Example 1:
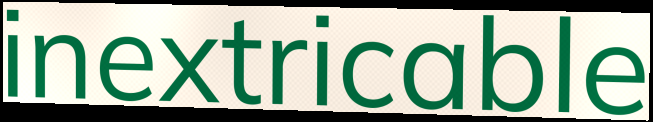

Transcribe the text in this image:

inextricable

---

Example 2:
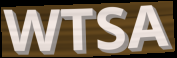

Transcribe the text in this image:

WTSA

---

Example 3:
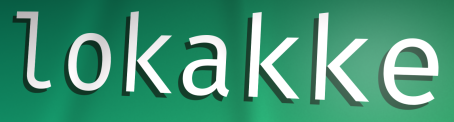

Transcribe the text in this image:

lokakke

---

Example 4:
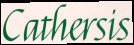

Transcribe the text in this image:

Cathersis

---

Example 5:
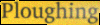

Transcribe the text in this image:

Ploughing